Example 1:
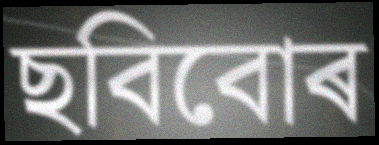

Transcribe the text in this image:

ছবিবোৰ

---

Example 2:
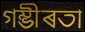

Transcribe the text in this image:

গম্ভীৰতা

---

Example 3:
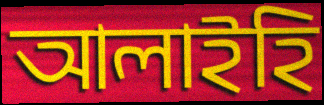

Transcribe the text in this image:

আলাইহি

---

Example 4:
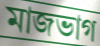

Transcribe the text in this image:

মাজভাগ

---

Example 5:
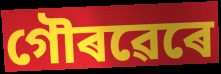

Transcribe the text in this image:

গৌৰৱেৰে